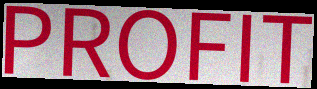
PROFIT